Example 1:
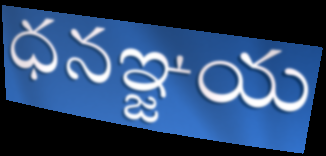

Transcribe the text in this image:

ధనఞ్జయ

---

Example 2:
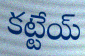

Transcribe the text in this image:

కట్టేయ్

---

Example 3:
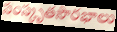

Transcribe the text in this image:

సంస్కృతసౌరభాలు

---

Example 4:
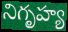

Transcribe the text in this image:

నిగృహ్య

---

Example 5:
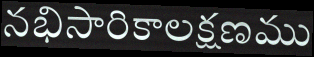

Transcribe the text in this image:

నభిసారికాలక్షణము